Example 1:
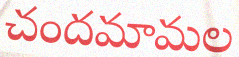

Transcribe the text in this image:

చందమామల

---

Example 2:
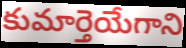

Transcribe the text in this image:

కుమార్తెయేగాని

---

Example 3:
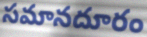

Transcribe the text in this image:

సమానదూరం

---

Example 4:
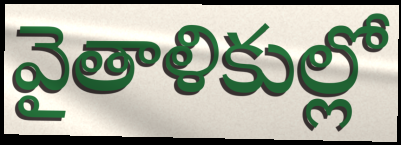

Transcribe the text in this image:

వైతాళికుల్లో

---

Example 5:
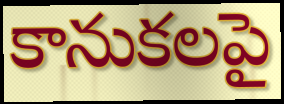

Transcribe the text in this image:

కానుకలపై